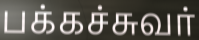
பக்கச்சுவர்